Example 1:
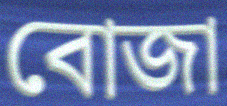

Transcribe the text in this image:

বোজা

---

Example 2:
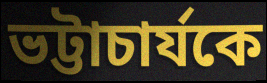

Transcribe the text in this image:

ভট্টাচার্যকে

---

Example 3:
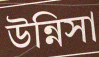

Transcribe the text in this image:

উন্নিসা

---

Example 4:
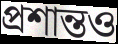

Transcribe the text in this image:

প্রশান্তও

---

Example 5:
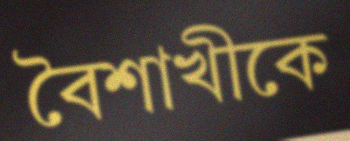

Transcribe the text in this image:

বৈশাখীকে